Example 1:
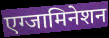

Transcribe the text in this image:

एग्‍जामिनेशन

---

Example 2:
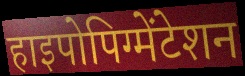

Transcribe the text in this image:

हाइपोपिग्मेंटेशन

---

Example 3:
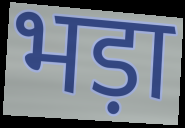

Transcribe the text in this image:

भड़ा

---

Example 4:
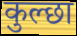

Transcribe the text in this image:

कुल्छा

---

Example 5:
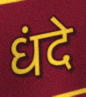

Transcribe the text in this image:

धंदे